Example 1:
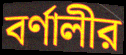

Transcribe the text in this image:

বর্ণালীর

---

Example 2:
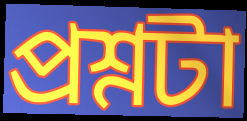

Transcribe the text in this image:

প্রশ্নটা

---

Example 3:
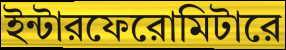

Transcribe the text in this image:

ইন্টারফেরোমিটারে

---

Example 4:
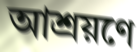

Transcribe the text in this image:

আশ্রয়ণে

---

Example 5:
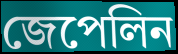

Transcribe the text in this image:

জেপেলিন